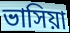
ভাসিয়া